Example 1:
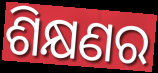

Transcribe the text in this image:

ଶିକ୍ଷଣର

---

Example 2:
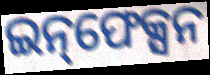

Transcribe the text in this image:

ଇନ୍‌ଫେକ୍ସନ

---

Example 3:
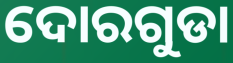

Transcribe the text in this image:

ଦୋରଗୁଡା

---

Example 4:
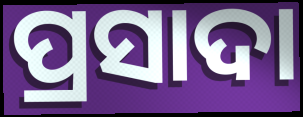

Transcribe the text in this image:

ପ୍ରସାଦା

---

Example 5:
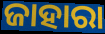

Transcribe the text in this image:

ଜାହାରା